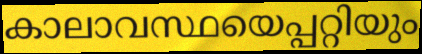
കാലാവസ്ഥയെപ്പറ്റിയും